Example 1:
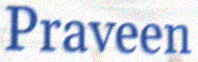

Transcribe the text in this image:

Praveen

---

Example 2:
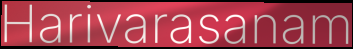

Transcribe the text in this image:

Harivarasanam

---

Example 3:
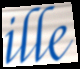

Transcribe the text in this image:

ille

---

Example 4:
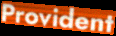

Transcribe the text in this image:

Provident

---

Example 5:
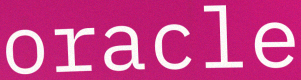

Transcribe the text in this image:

oracle